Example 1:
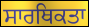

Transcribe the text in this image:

ਸਾਰਥਿਕਤਾ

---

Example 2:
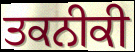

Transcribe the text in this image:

ਤਕਨੀਕੀ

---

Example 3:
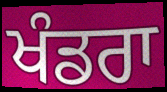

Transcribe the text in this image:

ਖੰਡਰਾ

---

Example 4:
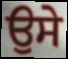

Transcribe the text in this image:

ਉਸੇ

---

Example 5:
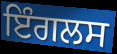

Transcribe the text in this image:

ਇੰਗਲਸ